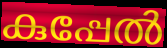
കുപ്പേൽ